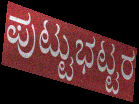
ಪುಟ್ಟುಭಟ್ಟರ